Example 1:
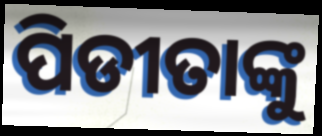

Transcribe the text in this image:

ପିଡୀତାଙ୍କୁ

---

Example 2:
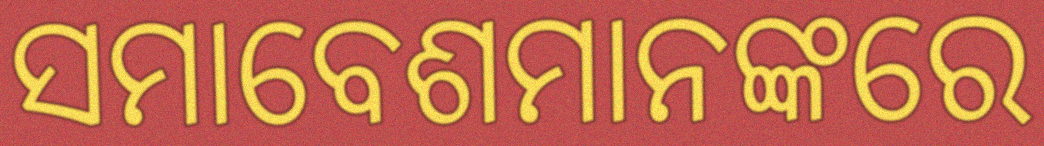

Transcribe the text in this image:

ସମାବେଶମାନଙ୍କରେ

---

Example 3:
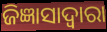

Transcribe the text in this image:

ଜିଜ୍ଞାସାଦ୍ୱାରା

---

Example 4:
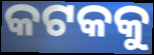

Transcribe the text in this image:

କଟକକୁ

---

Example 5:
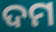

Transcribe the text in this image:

ଦମ